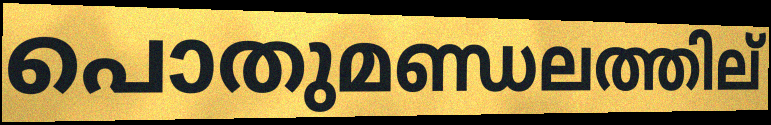
പൊതുമണ്ഡലത്തില്